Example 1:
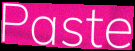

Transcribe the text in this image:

Paste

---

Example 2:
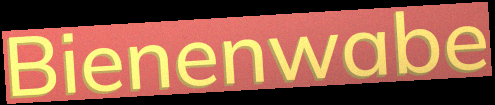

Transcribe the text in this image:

Bienenwabe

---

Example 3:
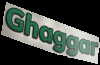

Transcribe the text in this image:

Ghaggar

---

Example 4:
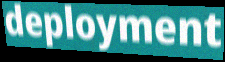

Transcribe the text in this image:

deployment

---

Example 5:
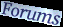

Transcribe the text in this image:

Forums